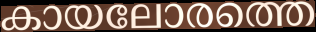
കായലോരത്തെ